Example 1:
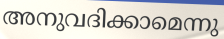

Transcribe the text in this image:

അനുവദിക്കാമെന്നു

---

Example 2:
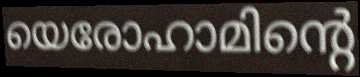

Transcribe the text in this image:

യെരോഹാമിന്റെ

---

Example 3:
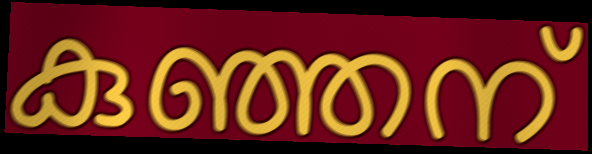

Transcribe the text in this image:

കുഞ്ഞന്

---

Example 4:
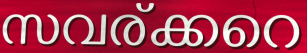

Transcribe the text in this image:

സവര്ക്കറെ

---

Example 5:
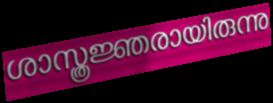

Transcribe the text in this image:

ശാസ്ത്രജ്ഞരായിരുന്നു